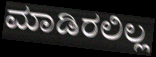
ಮಾಡಿರಲಿಲ್ಲ